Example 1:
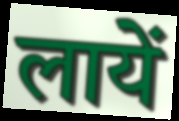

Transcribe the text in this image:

लायें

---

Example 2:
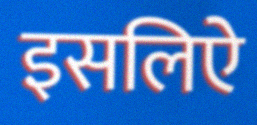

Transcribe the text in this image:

इसलिऐ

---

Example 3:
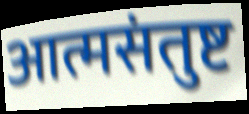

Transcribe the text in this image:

आत्मसंतुष्ट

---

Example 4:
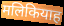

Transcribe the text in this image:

मलिकियाह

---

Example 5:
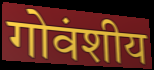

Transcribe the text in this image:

गोवंशीय